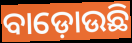
ବାଡ଼ୋଉଛି